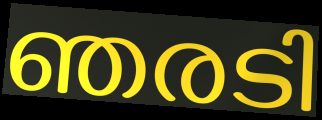
ഞരടി